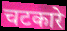
चटकारे